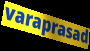
varaprasad